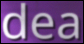
dea